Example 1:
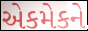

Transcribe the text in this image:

એકમેકને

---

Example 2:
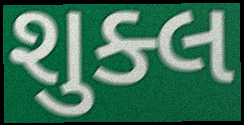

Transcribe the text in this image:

શુક્લ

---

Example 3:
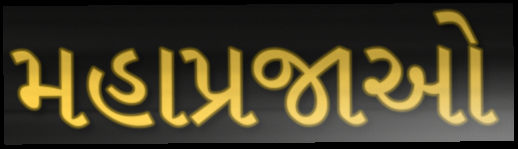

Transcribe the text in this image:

મહાપ્રજાઓ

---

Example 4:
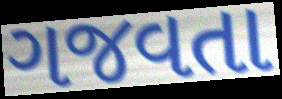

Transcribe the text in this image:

ગજવતા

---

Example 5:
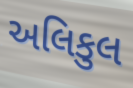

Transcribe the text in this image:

અલિકુલ